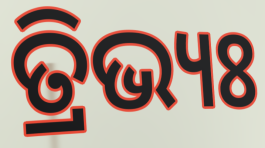
ତ୍ରିଭ୍ୟଃ